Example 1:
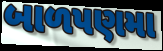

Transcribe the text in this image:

બાળપણમા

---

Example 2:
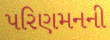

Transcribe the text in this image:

પરિણમનની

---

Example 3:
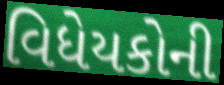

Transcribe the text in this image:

વિધેયકોની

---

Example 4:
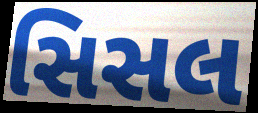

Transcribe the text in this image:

સિસલ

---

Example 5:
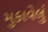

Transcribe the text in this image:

મુકાવેલું